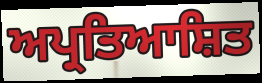
ਅਪ੍ਰਤਿਆਸ਼ਿਤ